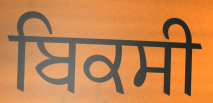
ਬਿਕਸੀ